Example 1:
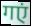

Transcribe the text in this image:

गएं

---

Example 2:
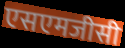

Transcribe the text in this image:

एसएमजीसी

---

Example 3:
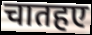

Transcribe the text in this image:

चातहए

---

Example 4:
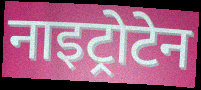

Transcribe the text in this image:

नाइट्रोटेन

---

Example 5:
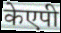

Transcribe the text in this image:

केएपी